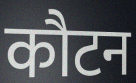
कौटन